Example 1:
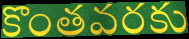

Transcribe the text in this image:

కొంతవరకు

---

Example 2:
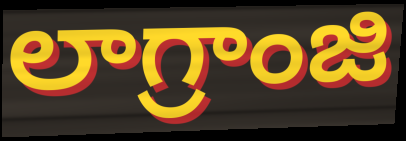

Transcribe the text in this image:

లాగ్రాంజి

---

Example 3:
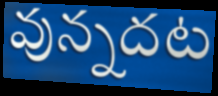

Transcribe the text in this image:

వున్నదట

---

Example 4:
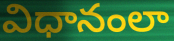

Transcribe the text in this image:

విధానంలా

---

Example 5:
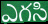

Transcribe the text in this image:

ఎగసి